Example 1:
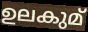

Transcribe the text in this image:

ഉലകുമ്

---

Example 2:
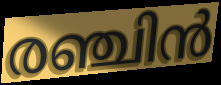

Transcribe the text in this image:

രഞ്ചിൻ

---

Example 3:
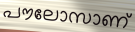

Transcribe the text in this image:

പൗലോസാണ്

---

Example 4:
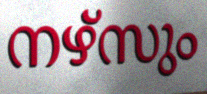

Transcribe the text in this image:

നഴ്സും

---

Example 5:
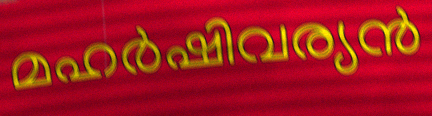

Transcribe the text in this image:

മഹർഷിവര്യൻ